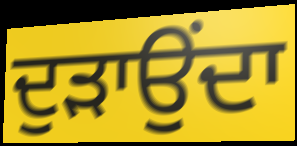
ਦੁੜਾਉਂਦਾ